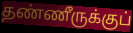
தண்ணீருக்குப்